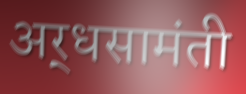
अर्धसामंती